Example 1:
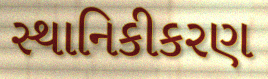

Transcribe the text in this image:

સ્થાનિકીકરણ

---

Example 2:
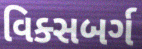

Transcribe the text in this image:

વિક્સબર્ગ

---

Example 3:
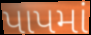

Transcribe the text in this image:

પાપમાં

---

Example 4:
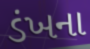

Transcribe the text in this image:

ડંખના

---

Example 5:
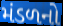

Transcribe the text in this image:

મંડળનો